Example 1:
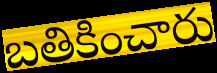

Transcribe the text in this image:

బతికించారు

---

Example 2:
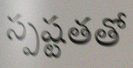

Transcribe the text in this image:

స్పష్టతతో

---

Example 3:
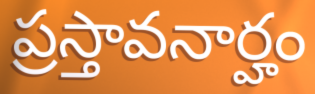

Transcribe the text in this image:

ప్రస్తావనార్హం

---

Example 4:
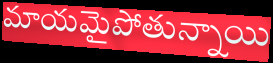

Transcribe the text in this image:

మాయమైపోతున్నాయి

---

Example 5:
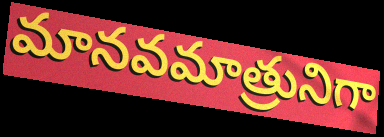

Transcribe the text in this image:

మానవమాత్రునిగా